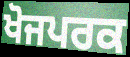
ਖੋਜਪਰਕ